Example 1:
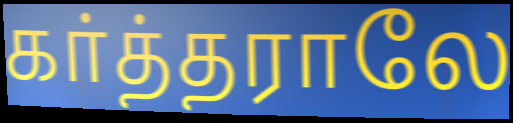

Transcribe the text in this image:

கர்த்தராலே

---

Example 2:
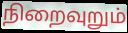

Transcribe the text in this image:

நிறைவுறும்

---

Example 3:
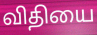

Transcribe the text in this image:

விதியை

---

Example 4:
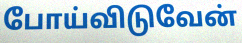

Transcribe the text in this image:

போய்விடுவேன்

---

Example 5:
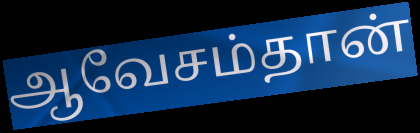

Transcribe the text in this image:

ஆவேசம்தான்